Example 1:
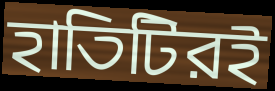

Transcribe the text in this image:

হাতিটিরই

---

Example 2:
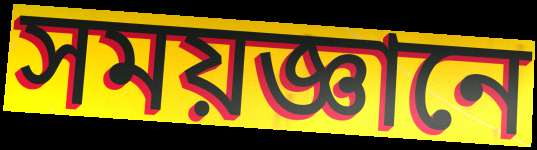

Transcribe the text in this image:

সময়জ্ঞানে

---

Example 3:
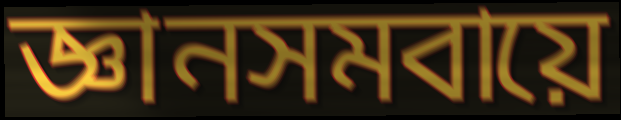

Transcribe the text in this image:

জ্ঞানসমবায়ে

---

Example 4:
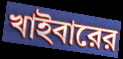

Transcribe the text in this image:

খাইবারের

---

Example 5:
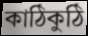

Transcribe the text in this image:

কাঠিকুঠি